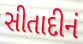
સીતાદીનં